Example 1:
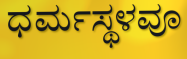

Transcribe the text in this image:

ಧರ್ಮಸ್ಥಳವೂ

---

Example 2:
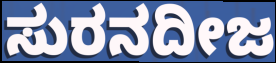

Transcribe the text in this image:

ಸುರನದೀಜ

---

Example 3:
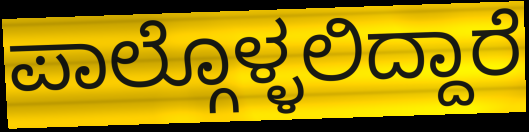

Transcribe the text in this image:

ಪಾಲ್ಗೊಳ್ಳಲಿದ್ದಾರೆ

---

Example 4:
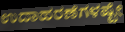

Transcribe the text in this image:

ಉದಾಹರಣೆಗಳಷ್ಟೇ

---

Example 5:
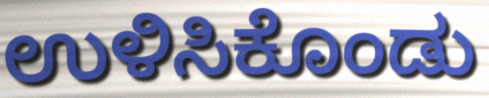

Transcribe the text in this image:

ಉಳಿಸಿಕೊಂಡು